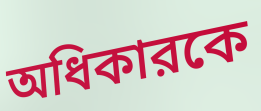
অধিকারকে